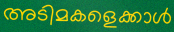
അടിമകളെക്കാൾ